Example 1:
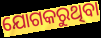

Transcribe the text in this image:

ଯୋଗକରୁଥିବା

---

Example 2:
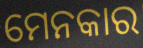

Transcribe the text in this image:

ମେନକାର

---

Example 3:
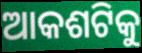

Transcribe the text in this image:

ଆକଶଟିକୁ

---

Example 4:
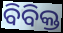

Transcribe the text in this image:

ବିବିକ୍ତ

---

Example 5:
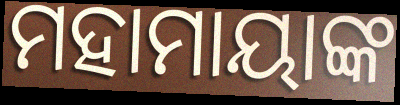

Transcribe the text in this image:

ମହାମାୟାଙ୍କ